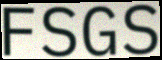
FSGS